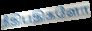
நீதிபதிகளோ